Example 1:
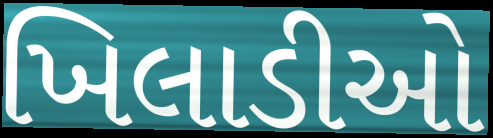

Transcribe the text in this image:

ખિલાડીઓ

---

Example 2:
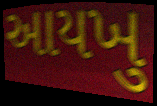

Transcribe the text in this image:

આયખુ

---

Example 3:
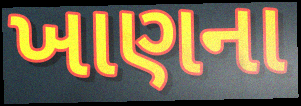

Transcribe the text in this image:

ખાણના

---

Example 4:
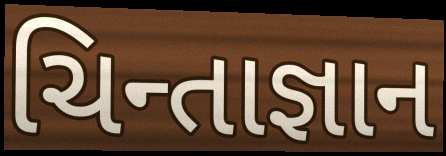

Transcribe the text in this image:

ચિન્તાજ્ઞાન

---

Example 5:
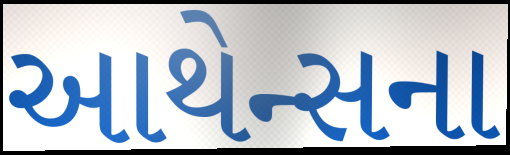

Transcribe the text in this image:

આથેન્સના